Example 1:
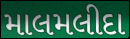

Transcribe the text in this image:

માલમલીદા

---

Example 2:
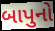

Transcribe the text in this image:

બાપુનો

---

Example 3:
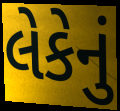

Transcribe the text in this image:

લેકેનું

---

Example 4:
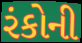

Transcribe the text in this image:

રંકોની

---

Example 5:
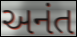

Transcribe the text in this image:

અનંત